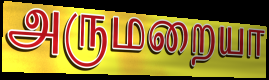
அருமறையா